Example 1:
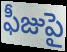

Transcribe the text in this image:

ఫీజుపై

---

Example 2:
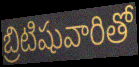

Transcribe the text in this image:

బ్రిటిషువారితో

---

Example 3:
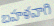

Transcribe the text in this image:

బహళవాగి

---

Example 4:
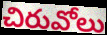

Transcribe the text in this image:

చిరువోలు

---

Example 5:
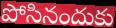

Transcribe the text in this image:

పోసినందుకు